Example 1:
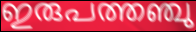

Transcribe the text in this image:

ഇരുപത്തഞ്ചു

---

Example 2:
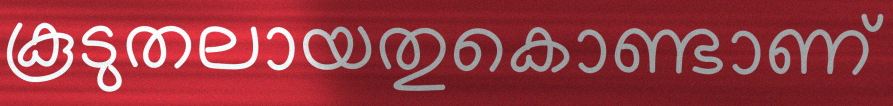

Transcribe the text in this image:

കൂടുതലായതുകൊണ്ടാണ്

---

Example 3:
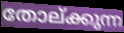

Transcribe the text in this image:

തോല്ക്കുന്ന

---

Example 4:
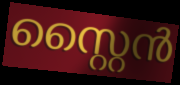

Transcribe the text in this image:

സ്റ്റൈൻ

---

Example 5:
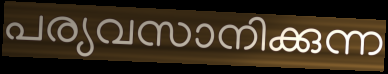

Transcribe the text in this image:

പര്യവസാനിക്കുന്ന